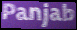
Panjab